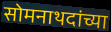
सोमनाथदांच्या